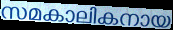
സമകാലികനായ